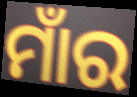
ମାଁର